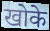
खोके